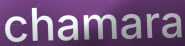
chamara